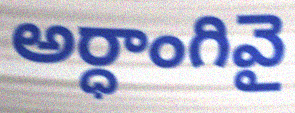
అర్ధాంగివై